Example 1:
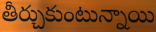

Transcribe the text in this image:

తీర్చుకుంటున్నాయి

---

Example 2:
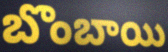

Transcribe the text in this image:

బొంబాయి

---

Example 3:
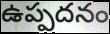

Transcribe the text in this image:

ఉప్పదనం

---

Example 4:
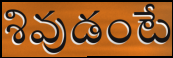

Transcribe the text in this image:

శివుడంటే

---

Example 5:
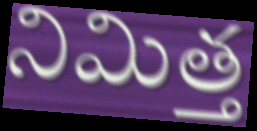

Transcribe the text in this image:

నిమిత్త